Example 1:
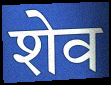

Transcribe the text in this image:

शेव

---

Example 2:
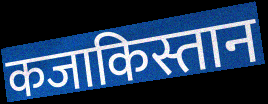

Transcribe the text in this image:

कजाकिस्तान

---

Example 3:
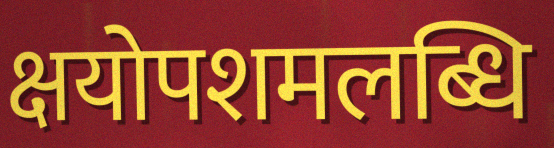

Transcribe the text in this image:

क्षयोपशमलब्धि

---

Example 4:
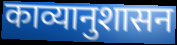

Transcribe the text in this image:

काव्यानुशासन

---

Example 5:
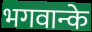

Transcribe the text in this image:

भगवान्के